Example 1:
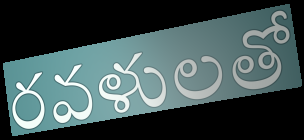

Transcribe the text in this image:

రవళులతో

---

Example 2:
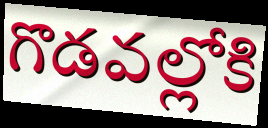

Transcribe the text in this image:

గొడవల్లోకి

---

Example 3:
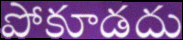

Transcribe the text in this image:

పోకూడదు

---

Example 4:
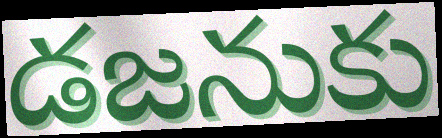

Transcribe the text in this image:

డజనుకు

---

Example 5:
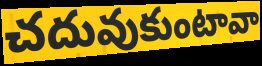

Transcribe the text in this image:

చదువుకుంటావా